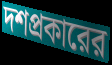
দশপ্রকারের